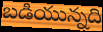
బడియున్నది